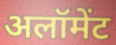
अलॉमेंट